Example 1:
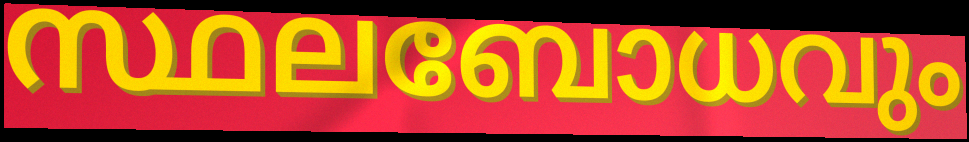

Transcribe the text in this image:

സ്ഥലബോധവും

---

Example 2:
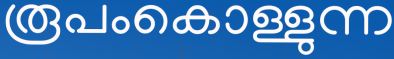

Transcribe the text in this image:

രൂപംകൊള്ളുന്ന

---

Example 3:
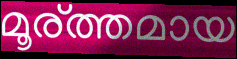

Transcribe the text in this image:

മൂര്ത്തമായ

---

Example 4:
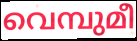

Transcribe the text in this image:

വെമ്പുമീ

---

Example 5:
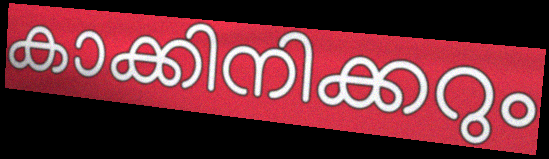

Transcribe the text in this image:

കാക്കിനിക്കറും